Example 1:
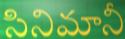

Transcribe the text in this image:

సినిమానీ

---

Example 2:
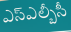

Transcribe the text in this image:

ఎస్ఎల్బీసీ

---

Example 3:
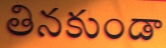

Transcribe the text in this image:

తినకుండా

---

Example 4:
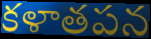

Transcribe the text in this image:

కళాతపన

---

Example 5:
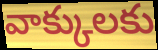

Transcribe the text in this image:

వాక్కులకు